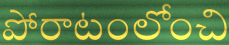
పోరాటంలోంచి